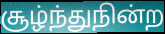
சூழ்ந்துநின்ற